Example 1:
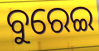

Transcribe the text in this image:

ବୁରେଇ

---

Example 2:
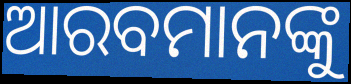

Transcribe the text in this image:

ଆରବମାନଙ୍କୁ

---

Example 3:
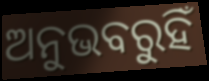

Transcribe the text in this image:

ଅନୁଭବରୁହିଁ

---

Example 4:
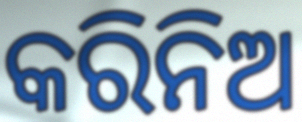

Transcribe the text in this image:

କରିନିଅ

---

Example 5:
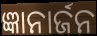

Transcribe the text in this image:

ଜ୍ଞାନାର୍ଜନ